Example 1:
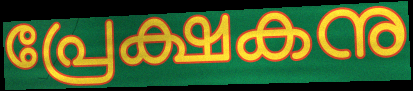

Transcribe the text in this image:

പ്രേക്ഷകനു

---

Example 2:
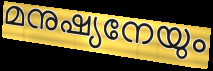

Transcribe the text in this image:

മനുഷ്യനേയും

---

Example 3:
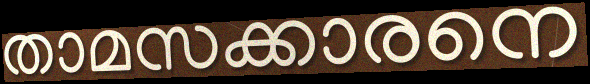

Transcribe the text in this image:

താമസക്കാരനെ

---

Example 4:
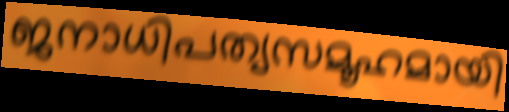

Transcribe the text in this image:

ജനാധിപത്യസമൂഹമായി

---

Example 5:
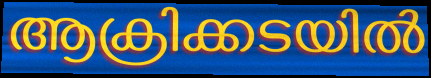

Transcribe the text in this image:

ആക്രിക്കടയിൽ